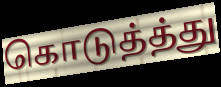
கொடுத்த்து